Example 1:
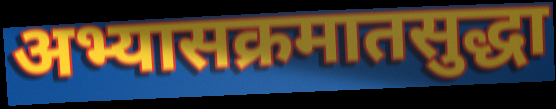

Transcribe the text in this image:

अभ्यासक्रमातसुद्धा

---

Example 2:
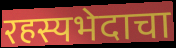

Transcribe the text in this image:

रहस्यभेदाचा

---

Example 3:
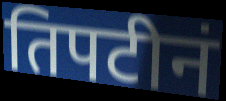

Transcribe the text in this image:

तिपटीनं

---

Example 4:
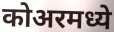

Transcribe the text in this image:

कोअरमध्ये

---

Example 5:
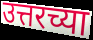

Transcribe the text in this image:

उत्तरच्या